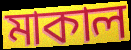
মাকাল